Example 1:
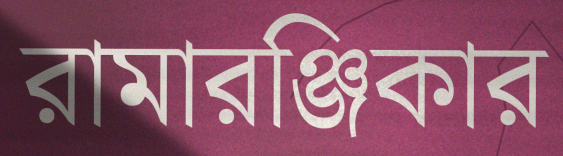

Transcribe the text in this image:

রামারঞ্জিকার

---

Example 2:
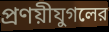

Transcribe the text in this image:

প্রণয়ীযুগলের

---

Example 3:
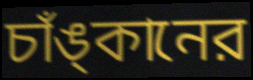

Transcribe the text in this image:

চাঁঙ্‌কানের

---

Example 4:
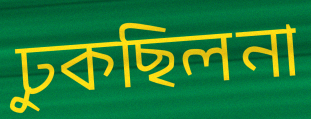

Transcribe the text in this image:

ঢুকছিলনা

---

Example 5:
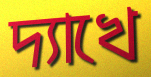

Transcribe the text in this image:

দ্যাখে